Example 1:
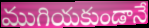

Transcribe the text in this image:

ముగియకుండానే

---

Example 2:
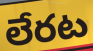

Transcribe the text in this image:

లేరట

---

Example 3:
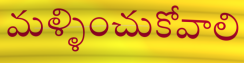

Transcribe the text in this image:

మళ్ళించుకోవాలి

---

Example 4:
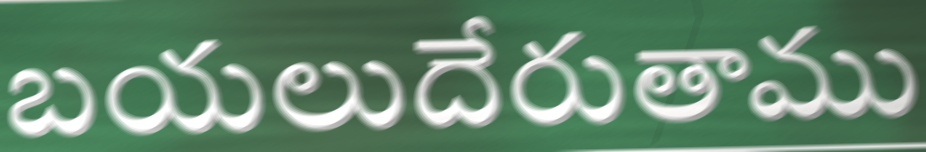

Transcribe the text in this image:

బయలుదేరుతాము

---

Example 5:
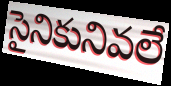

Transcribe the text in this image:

సైనికునివలే